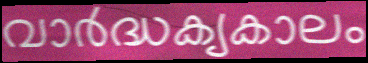
വാർദ്ധക്യകാലം